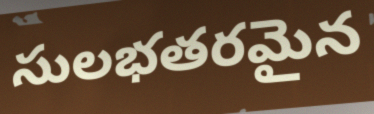
సులభతరమైన